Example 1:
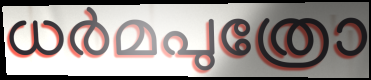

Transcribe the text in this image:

ധർമപുത്രോ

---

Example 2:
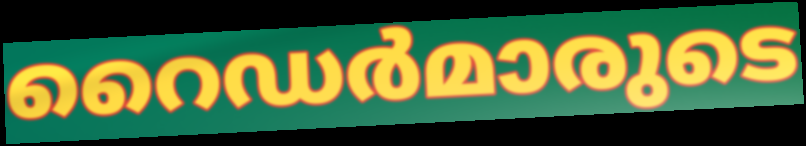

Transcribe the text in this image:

റൈഡർമാരുടെ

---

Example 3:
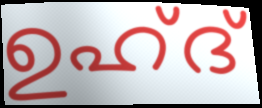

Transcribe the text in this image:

ഉഹ്ദ്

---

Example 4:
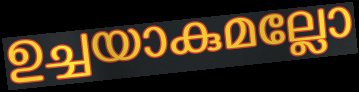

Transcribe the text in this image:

ഉച്ചയാകുമല്ലോ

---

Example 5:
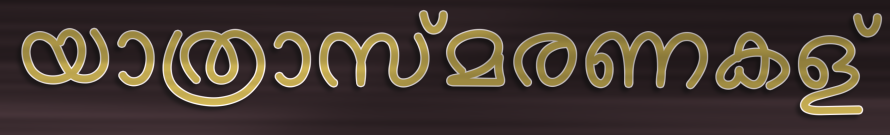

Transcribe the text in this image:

യാത്രാസ്മരണകള്